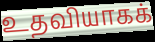
உதவியாகக்